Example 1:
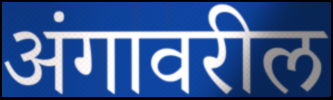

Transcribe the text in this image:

अंगावरील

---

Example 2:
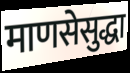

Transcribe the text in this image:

माणसेसुद्धा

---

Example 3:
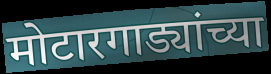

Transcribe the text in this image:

मोटारगाड्यांच्या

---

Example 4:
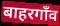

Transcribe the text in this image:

बाहरगाँव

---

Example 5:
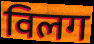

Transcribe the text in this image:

विलग